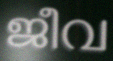
ജീവ